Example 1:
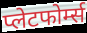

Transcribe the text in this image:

प्लेटफोर्म्स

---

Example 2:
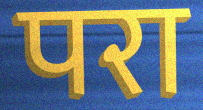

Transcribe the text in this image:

परा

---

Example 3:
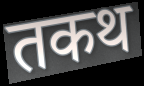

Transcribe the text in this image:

तकथ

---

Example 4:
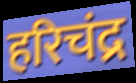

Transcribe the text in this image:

हरिचंद्र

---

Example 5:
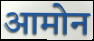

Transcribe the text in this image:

आमोन